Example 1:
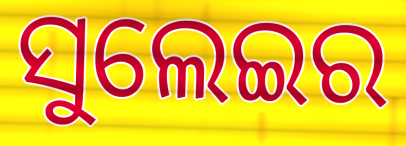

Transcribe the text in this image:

ସୁଲେଇର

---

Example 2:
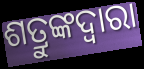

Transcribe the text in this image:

ଶତ୍ରୁଙ୍କଦ୍ୱାରା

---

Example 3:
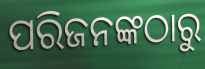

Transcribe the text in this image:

ପରିଜନଙ୍କଠାରୁ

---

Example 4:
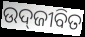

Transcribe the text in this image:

ଉଦ୍‌ଜୀବିତ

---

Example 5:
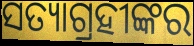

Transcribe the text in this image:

ସତ୍ୟାଗ୍ରହୀଙ୍କର